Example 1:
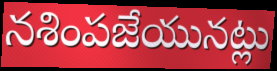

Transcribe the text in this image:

నశింపజేయునట్లు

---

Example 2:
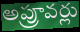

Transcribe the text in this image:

అప్రూవర్లు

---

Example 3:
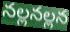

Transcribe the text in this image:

నల్లనల్లన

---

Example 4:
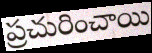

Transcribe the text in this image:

ప్రచురించాయి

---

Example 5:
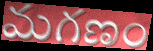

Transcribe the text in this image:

మగణం